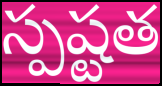
స్పష్టత